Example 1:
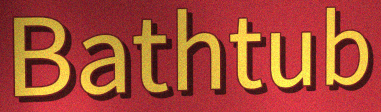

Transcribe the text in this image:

Bathtub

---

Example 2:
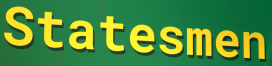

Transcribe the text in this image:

Statesmen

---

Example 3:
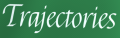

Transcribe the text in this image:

Trajectories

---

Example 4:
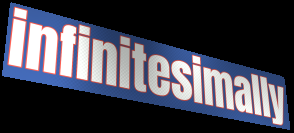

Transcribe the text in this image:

infinitesimally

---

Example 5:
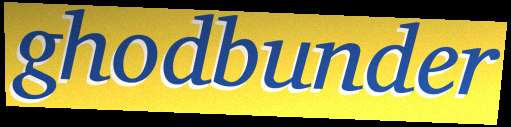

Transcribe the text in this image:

ghodbunder